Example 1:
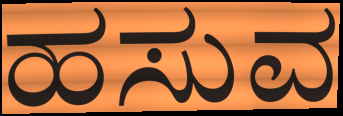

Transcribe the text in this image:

ಹಸುವ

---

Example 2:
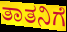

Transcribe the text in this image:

ತಾತನಿಗೆ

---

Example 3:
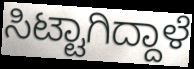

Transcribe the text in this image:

ಸಿಟ್ಟಾಗಿದ್ದಾಳೆ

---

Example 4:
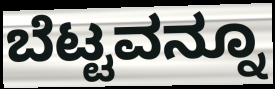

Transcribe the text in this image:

ಬೆಟ್ಟವನ್ನೂ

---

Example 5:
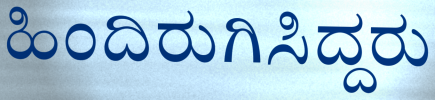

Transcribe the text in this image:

ಹಿಂದಿರುಗಿಸಿದ್ದರು